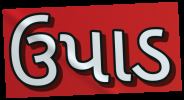
ઉપાડ